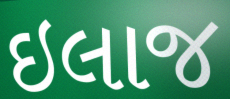
ઇલાજ